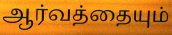
ஆர்வத்தையும்